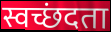
स्वच्छंदता